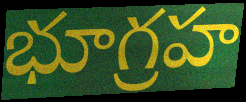
భూగ్రహ